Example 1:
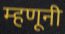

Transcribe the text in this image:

म्हणूनी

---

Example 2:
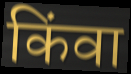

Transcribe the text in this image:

किंवा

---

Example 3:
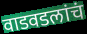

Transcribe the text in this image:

वाडवडलांचं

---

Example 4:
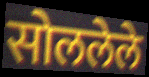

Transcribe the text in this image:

सोललेले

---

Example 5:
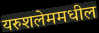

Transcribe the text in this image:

यरुशलेममधील